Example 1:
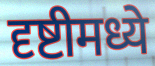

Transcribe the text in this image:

दृष्टीमध्ये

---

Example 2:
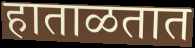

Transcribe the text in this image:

हाताळतात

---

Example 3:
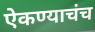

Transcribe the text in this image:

ऐकण्याचंच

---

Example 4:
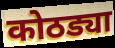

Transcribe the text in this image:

कोठड्या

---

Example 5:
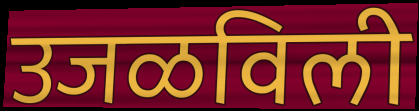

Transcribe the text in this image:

उजळविली